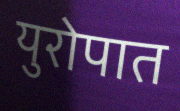
युरोपात